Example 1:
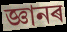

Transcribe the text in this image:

জ্ঞানৰ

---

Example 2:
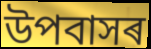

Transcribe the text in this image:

উপবাসৰ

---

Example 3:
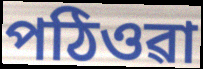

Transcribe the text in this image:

পঠিওৱা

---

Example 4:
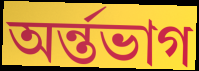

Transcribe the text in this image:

অৰ্ন্তভাগ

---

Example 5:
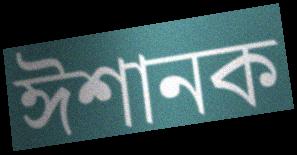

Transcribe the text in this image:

ঈশানক